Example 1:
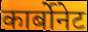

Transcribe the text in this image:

कार्बोनेट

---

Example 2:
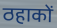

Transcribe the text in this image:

ठहाकों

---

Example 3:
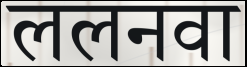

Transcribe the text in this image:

ललनवा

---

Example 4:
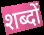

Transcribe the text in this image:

शब्दों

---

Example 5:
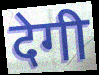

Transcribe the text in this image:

देगी